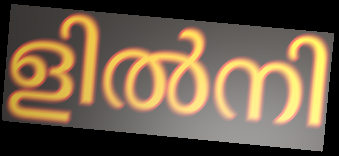
ളിൽനി